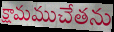
క్షామముచేతను